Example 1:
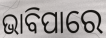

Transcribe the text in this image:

ଭାବିପାରେ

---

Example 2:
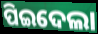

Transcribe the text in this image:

ପିଇଦେଲା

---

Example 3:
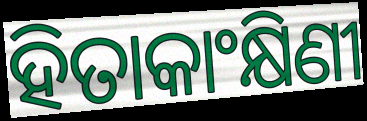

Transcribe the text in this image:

ହିତାକାଂକ୍ଷିଣୀ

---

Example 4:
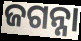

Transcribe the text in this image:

ଜଗନ୍ନା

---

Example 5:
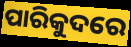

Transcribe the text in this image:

ପାରିକୁଦରେ